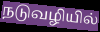
நடுவழியில்